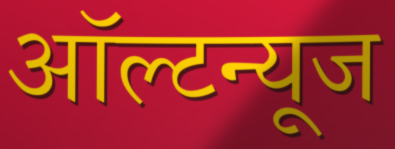
ऑल्टन्यूज